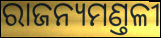
ରାଜନ୍ୟମଣ୍ତଳୀ